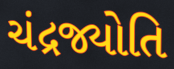
ચંદ્રજ્યોતિ